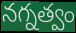
నగ్నత్వం